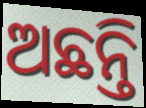
ଅଛନ୍ତି